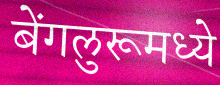
बेंगलुरूमध्ये